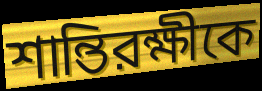
শান্তিরক্ষীকে